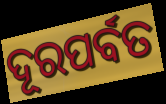
ଦୂରପର୍ବତ